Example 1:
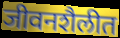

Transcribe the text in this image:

जीवनशैलीत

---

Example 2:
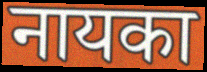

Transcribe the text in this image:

नायका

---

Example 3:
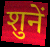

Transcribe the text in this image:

शुनें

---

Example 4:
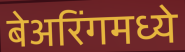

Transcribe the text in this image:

बेअरिंगमध्ये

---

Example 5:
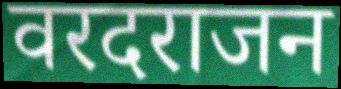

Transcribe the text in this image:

वरदराजन